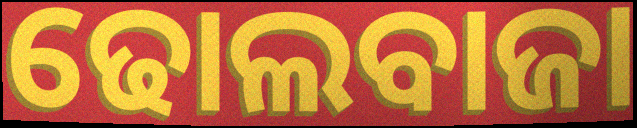
ଢୋଲବାଜା